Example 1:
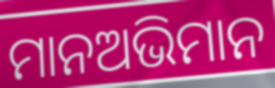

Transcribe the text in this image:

ମାନଅଭିମାନ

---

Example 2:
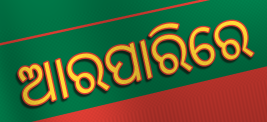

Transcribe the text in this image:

ଆରପାରିରେ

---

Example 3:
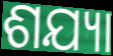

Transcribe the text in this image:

ଶଯ୍ୟା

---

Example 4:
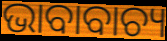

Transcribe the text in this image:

ଭାବାବାଚ୍ୟ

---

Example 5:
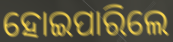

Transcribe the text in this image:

ହୋଇପାରିଲେ